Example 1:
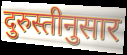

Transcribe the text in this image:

दुरुस्तीनुसार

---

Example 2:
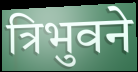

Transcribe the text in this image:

त्रिभुवने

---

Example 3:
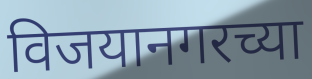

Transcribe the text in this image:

विजयानगरच्या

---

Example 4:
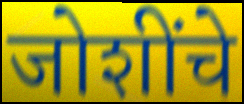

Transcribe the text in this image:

जोशींचे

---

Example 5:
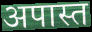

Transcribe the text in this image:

अपास्त